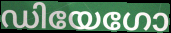
ഡിയേഗോ